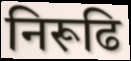
निरूढि